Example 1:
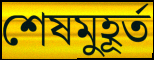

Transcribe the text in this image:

শেষমুহূর্ত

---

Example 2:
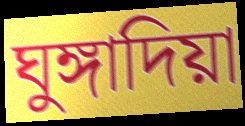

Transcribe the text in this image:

ঘুঙ্গাদিয়া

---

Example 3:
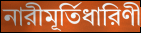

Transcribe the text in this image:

নারীমূর্তিধারিণী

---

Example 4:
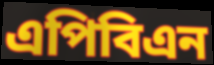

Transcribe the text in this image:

এপিবিএন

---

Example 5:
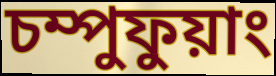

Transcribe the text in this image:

চম্পুফুয়াং